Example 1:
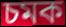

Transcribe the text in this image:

চমক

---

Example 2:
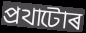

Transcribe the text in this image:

প্ৰথাটোৰ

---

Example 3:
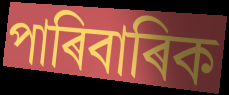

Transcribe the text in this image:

পাৰিবাৰিক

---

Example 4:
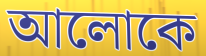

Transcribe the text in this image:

আলোকে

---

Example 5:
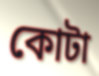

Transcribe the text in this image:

কোটা